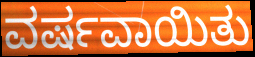
ವರ್ಷವಾಯಿತು